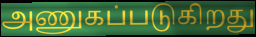
அணுகப்படுகிறது